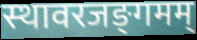
स्थावरजङ्गमम्